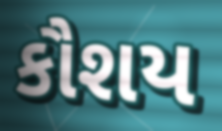
કૌશય